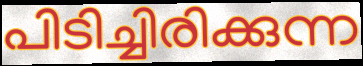
പിടിച്ചിരിക്കുന്ന